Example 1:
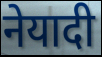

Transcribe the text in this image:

नेयादी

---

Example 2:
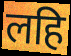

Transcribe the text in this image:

लहि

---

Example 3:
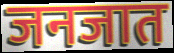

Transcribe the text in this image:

जनजात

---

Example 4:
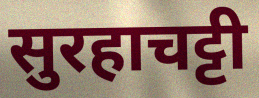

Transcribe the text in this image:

सुरहाचट्टी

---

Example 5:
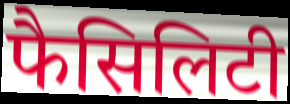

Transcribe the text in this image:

फैसिलिटी